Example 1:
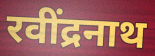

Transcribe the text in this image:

रवींद्रनाथ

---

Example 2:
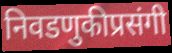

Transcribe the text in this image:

निवडणुकीप्रसंगी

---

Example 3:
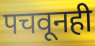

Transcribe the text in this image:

पचवूनही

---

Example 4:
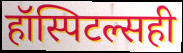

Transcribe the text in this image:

हॉस्पिटल्सही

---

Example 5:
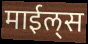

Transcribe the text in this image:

माईल्स